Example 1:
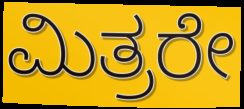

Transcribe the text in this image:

ಮಿತ್ರರೇ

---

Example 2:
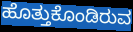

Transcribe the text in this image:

ಹೊತ್ತುಕೊಂಡಿರುವ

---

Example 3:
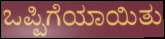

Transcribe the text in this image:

ಒಪ್ಪಿಗೆಯಾಯಿತು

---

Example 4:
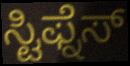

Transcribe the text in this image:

ಸ್ಟಿಫ್ನೆಸ್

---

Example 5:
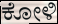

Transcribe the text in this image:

ಕೋಳಿ